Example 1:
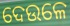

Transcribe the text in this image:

ଦେଉଳେ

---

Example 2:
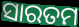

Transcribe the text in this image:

ସାରତମ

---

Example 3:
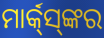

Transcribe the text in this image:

ମାର୍କ୍‍ସ୍‍ଙ୍କର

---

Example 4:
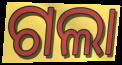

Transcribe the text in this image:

ଗଲା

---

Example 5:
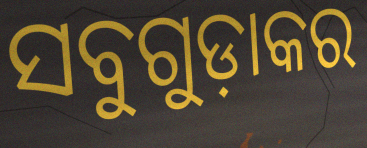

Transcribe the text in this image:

ସବୁଗୁଡ଼ାକର